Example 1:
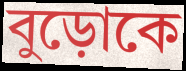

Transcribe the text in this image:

বুড়োকে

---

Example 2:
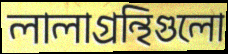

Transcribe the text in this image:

লালাগ্রন্থিগুলো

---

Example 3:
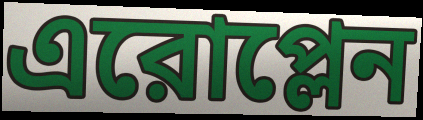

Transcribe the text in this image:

এরোপ্লেন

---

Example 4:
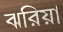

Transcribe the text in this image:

ঝরিয়া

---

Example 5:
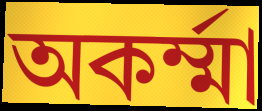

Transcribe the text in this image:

অকর্ম্মা